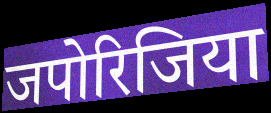
जपोरिजिया